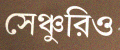
সেঞ্চুরিও